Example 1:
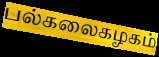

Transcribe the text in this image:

பல்கலைகழகம்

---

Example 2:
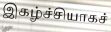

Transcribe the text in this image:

இகழ்ச்சியாகச்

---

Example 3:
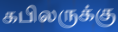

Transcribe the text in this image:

கபிலருக்கு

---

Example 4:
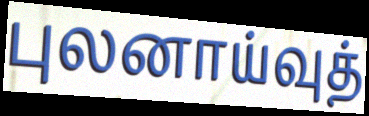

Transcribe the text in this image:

புலனாய்வுத்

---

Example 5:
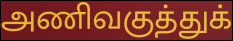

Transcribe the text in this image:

அணிவகுத்துக்